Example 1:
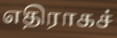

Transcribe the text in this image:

எதிராகச்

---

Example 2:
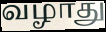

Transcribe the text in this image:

வழாது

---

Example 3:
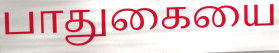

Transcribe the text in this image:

பாதுகையை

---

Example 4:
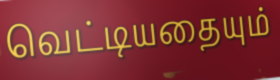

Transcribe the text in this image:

வெட்டியதையும்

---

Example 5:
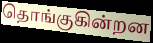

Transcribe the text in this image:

தொங்குகின்றன